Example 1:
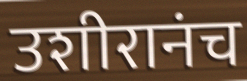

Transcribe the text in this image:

उशीरानंच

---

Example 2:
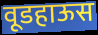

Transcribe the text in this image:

वूडहाऊस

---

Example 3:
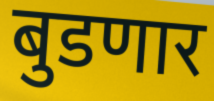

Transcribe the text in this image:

बुडणार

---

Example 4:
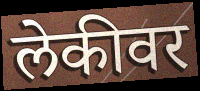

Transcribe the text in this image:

लेकीवर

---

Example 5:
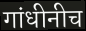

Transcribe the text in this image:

गांधीनीच